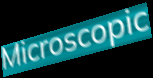
Microscopic